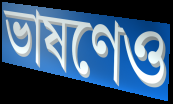
ভাষণেও